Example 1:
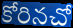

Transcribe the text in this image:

కోరినచో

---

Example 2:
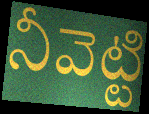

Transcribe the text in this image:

నీవెట్టి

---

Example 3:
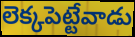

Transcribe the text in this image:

లెక్కపెట్టేవాడు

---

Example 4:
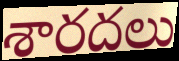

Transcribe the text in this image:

శారదలు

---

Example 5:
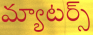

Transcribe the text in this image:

మ్యాటర్స్